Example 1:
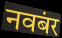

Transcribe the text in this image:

नवबंर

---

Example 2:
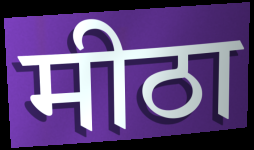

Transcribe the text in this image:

मीठा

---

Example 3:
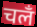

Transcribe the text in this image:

चलँ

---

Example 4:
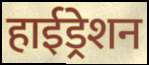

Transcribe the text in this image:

हाईड्रेशन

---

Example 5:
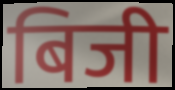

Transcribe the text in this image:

बिजी